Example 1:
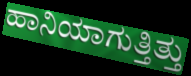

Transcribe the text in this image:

ಹಾನಿಯಾಗುತ್ತಿತ್ತು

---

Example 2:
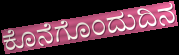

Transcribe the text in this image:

ಕೊನೆಗೊಂದುದಿನ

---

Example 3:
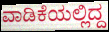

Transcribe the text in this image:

ವಾಡಿಕೆಯಲ್ಲಿದ್ದ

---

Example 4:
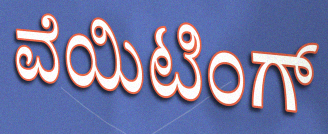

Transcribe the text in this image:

ವೆಯಿಟಿಂಗ್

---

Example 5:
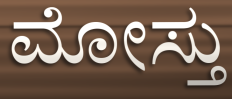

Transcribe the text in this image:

ಮೋಸ್ತು